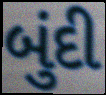
બુંદી